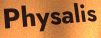
Physalis